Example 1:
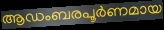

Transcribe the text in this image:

ആഡംബരപൂർണമായ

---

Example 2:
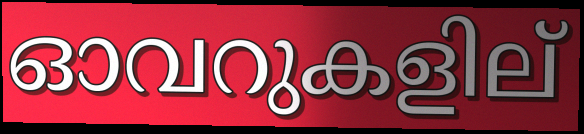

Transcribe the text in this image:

ഓവറുകളില്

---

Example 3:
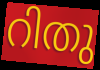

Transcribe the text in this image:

റിതു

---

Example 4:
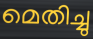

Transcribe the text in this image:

മെതിച്ചു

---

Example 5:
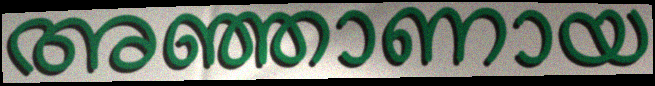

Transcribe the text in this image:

അഞ്ഞാണായ